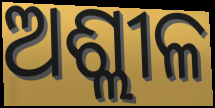
ଅଶ୍ଲୀଳ